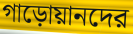
গাড়োয়ানদের